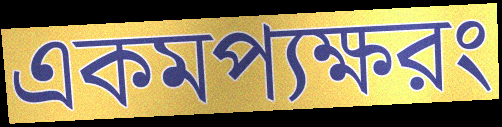
একমপ্যক্ষরং